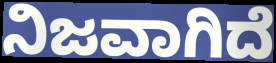
ನಿಜವಾಗಿದೆ